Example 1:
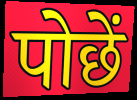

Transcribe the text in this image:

पोछें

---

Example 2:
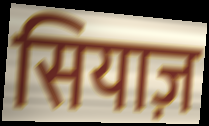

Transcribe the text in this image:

सियाज़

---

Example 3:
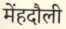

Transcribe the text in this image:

मेंहदौली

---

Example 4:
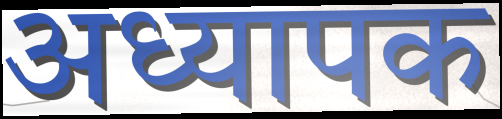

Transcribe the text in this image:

अध्यापक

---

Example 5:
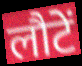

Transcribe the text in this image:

लौटें